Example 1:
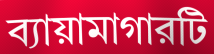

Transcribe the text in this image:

ব্যায়ামাগারটি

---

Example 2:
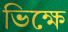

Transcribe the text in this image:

ভিক্ষে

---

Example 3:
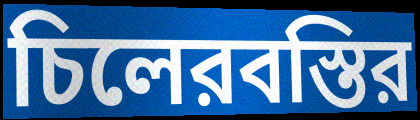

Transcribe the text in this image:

চিলেরবস্তির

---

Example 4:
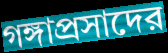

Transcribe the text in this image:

গঙ্গাপ্রসাদের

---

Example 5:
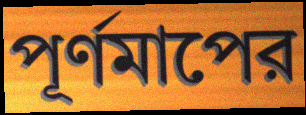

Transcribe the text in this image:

পূর্ণমাপের